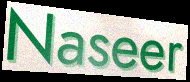
Naseer